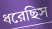
ধরেছিস